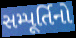
સમ્પૂર્તિનો